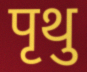
पृथु